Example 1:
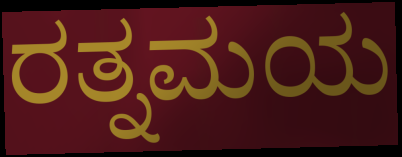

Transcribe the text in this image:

ರತ್ನಮಯ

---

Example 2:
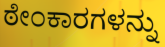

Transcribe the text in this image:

ಠೇಂಕಾರಗಳನ್ನು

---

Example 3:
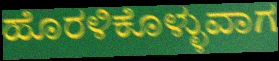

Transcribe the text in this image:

ಹೊರಳಿಕೊಳ್ಳುವಾಗ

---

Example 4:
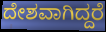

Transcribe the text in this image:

ದೇಶವಾಗಿದ್ದರೆ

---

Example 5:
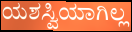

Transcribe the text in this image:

ಯಶಸ್ವಿಯಾಗಿಲ್ಲ